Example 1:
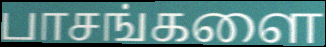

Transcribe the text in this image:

பாசங்களை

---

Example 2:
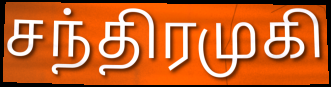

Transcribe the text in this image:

சந்திரமுகி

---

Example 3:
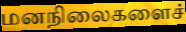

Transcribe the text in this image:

மனநிலைகளைச்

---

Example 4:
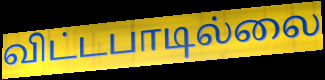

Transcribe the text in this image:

விட்டபாடில்லை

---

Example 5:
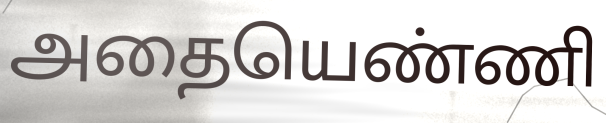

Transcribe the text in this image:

அதையெண்ணி